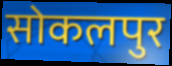
सोकलपुर